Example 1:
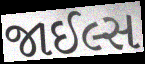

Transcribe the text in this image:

જાઈલ્સ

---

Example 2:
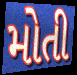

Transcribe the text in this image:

મોતી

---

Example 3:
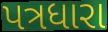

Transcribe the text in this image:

પત્રધારા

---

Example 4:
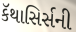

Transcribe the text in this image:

કૅથાસિર્સની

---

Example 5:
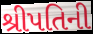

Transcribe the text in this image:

શ્રીપતિની